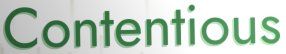
Contentious